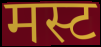
मस्ट